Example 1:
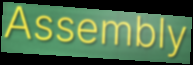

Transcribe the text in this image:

Assembly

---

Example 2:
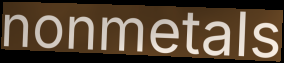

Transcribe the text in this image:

nonmetals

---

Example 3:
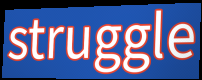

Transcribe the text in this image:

struggle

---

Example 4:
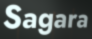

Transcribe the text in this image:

Sagara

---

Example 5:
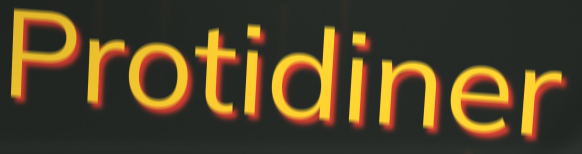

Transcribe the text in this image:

Protidiner